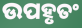
ଉପହୃତଂ